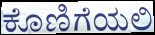
ಕೊಣಿಗೆಯಲಿ